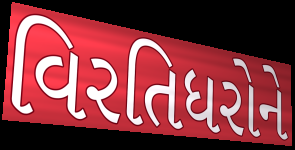
વિરતિધરોને